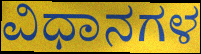
ವಿಧಾನಗಳ